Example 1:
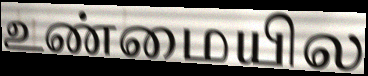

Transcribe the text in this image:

உண்மையில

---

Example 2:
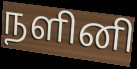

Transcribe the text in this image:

நளினி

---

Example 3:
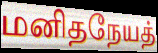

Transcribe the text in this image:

மனிதநேயத்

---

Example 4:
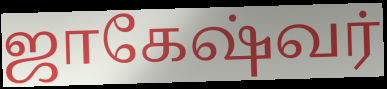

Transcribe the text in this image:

ஜாகேஷ்வர்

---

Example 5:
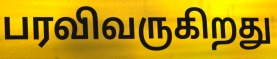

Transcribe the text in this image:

பரவிவருகிறது